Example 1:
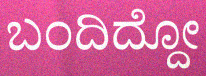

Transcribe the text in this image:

ಬಂದಿದ್ದೋ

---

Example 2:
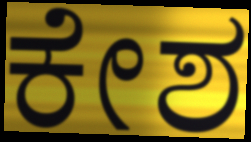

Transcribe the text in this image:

ಕೇಶ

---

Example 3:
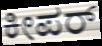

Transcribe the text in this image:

ಕೀಪರ್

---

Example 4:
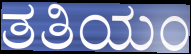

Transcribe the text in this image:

ತತಿಯಂ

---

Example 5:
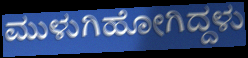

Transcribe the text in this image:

ಮುಳುಗಿಹೋಗಿದ್ದಳು